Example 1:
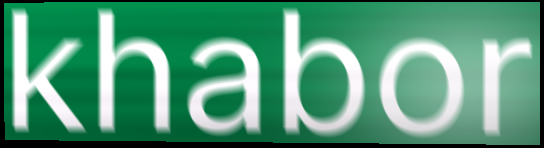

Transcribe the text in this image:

khabor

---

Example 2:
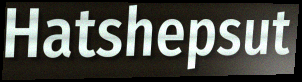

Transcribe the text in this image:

Hatshepsut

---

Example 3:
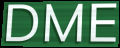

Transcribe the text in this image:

DME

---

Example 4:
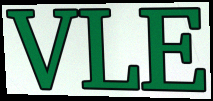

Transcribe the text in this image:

VLE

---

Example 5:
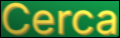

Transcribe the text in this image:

Cerca